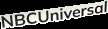
NBCUniversal